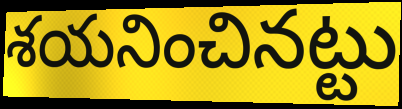
శయనించినట్టు